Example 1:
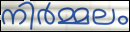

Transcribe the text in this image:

നിർമ്മലം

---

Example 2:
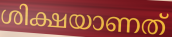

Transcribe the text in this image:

ശിക്ഷയാണത്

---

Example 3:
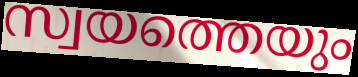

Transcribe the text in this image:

സ്വയത്തെയും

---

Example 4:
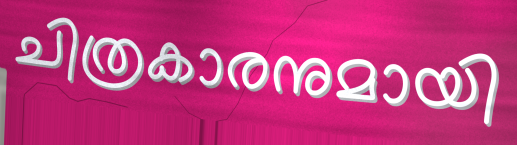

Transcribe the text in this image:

ചിത്രകാരനുമായി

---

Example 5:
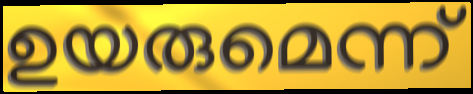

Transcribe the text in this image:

ഉയരുമെന്ന്